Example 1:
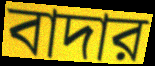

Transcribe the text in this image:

বাদার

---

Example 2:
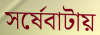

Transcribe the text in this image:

সর্ষেবাটায়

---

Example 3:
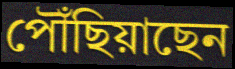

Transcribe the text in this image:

পৌঁছিয়াছেন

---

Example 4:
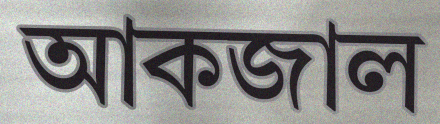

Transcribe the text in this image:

আকজাল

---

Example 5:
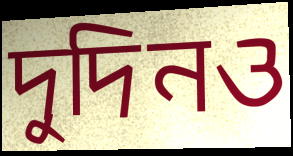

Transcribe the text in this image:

দুদিনও